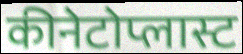
कीनेटोप्लास्ट